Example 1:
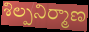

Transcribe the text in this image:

శిల్పనిర్మాణ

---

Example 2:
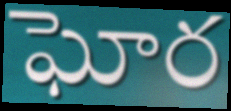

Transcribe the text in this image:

ఘోర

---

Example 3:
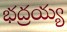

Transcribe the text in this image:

భద్రయ్య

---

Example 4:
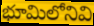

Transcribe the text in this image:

భూమిలోనివి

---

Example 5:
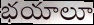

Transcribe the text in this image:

భయాలూ